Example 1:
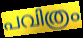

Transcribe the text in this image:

പവിത്രം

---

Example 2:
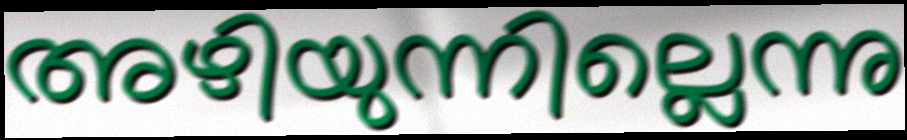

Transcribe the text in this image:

അഴിയുന്നില്ലെന്നു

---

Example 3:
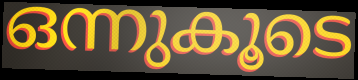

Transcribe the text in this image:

ഒന്നുകൂടെ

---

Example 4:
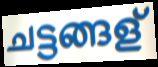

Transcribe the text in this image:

ചട്ടങ്ങള്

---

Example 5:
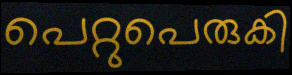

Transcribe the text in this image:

പെറ്റുപെരുകി